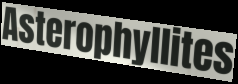
Asterophyllites